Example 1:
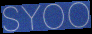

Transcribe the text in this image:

SYOO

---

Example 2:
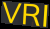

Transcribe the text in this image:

VRI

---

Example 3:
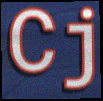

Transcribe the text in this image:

Cj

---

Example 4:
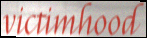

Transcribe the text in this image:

victimhood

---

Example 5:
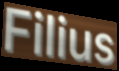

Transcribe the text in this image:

Filius